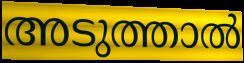
അടുത്താൽ